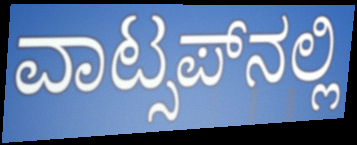
ವಾಟ್ಸಪ್‍ನಲ್ಲಿ